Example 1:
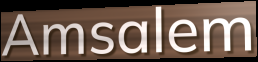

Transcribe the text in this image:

Amsalem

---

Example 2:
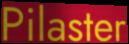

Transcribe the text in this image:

Pilaster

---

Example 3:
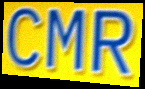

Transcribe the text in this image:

CMR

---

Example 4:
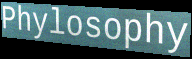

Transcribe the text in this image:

Phylosophy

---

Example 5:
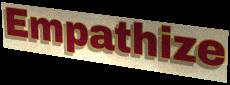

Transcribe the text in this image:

Empathize